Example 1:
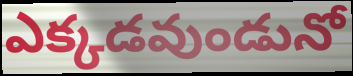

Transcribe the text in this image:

ఎక్కడవుండునో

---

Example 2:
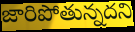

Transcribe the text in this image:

జారిపోతున్నదని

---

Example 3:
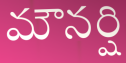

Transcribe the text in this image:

మౌనర్షి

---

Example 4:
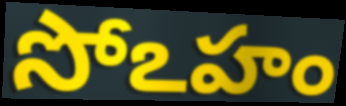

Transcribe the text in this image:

సోఽహం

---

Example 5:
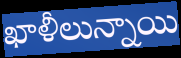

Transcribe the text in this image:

ఖాళీలున్నాయి